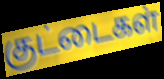
குட்டைகள்